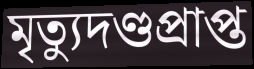
মৃত্যুদণ্ডপ্রাপ্ত